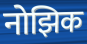
नोझिक